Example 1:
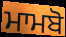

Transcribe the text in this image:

ਮਾਮਬੋ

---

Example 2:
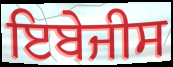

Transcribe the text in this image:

ਇਬੇਜੀਸ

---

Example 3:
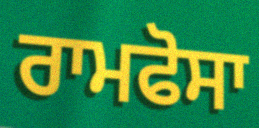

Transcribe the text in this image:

ਰਾਮਫੋਸਾ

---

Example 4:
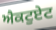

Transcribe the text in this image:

ਐਕਟੁਏਟ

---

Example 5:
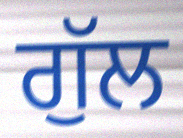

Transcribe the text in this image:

ਗੁੱਲ